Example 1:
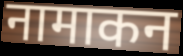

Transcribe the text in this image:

नामाकन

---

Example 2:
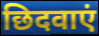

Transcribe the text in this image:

छिदवाएं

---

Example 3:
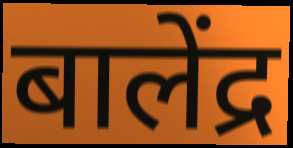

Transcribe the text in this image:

बालेंद्र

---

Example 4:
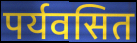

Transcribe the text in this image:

पर्यवसित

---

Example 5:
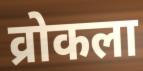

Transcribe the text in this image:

व्रोकला